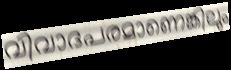
വിവാദപരമാണെങ്കിലും